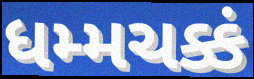
ધમ્મચક્કં